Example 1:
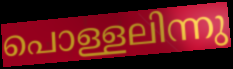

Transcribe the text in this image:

പൊള്ളലിന്നു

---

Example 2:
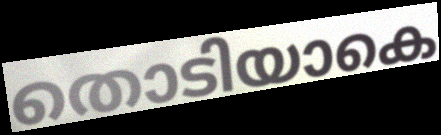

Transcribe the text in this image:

തൊടിയാകെ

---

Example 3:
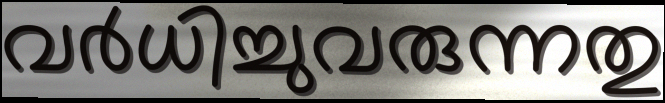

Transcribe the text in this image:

വർധിച്ചുവരുന്നതു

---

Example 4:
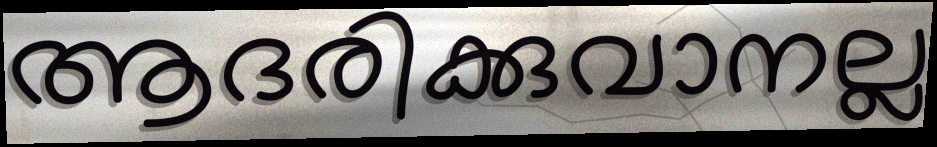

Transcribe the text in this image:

ആദരിക്കുവാനല്ല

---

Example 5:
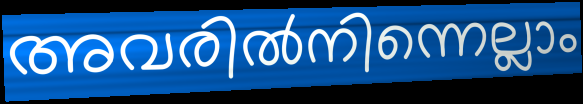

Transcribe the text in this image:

അവരിൽനിന്നെല്ലാം